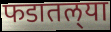
फडातल्या